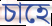
চাহে